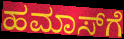
ಹಮಾಸ್‌ಗೆ